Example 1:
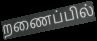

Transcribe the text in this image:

றணைப்பில்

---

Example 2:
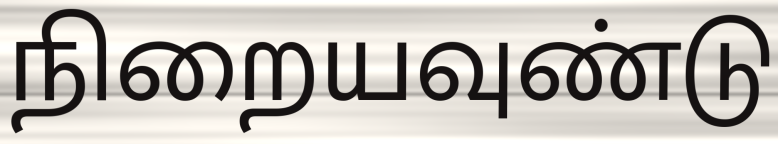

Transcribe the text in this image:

நிறையவுண்டு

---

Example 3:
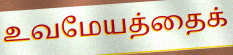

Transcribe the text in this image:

உவமேயத்தைக்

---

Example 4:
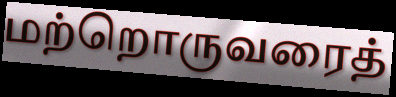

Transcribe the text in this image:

மற்றொருவரைத்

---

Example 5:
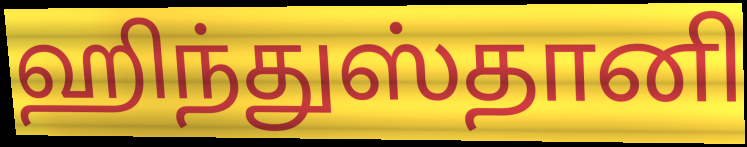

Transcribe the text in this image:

ஹிந்துஸ்தானி